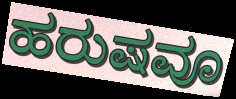
ಹರುಷವೂ